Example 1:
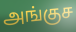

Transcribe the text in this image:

அங்குச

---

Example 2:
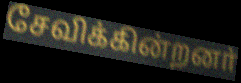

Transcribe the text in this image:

சேவிக்கின்றனர்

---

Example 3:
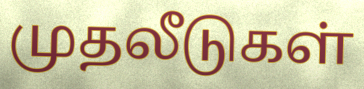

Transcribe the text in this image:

முதலீடுகள்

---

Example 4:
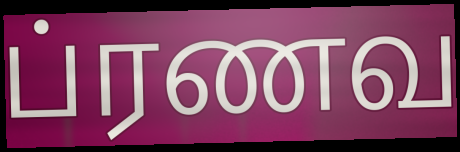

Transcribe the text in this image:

ப்ரணவ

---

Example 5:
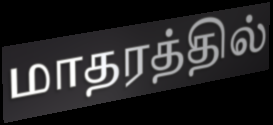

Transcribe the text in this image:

மாதரத்தில்